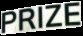
PRIZE